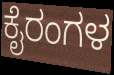
ಕೈರಂಗಳ